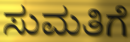
ಸುಮತಿಗೆ